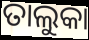
ତାଲୁକା